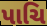
પાચિ